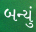
બન્યું